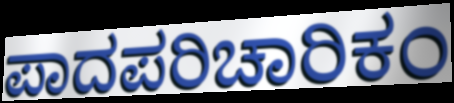
ಪಾದಪರಿಚಾರಿಕಂ